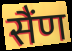
सैंण